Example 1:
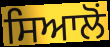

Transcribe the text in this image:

ਸਿਆਲੋਂ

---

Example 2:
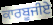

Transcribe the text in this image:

ਕਾਰਬੂਜੀਏ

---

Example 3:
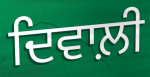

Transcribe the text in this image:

ਦਿਵਾਲ਼ੀ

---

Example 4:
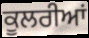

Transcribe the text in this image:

ਕੂਲਰੀਆਂ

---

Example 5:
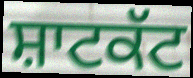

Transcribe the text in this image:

ਸ਼ਾਟਕੱਟ